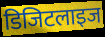
डिजिटलाइज